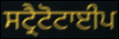
ਸਟ੍ਰੈਟੋਟਾਈਪ